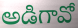
అడిగావో